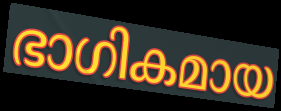
ഭാഗികമായ